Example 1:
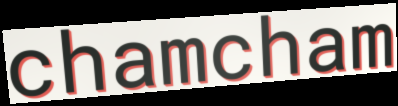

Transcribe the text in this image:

chamcham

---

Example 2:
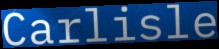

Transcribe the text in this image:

Carlisle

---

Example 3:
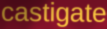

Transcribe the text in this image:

castigate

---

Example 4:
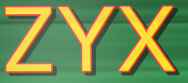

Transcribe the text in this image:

ZYX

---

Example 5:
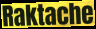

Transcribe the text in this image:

Raktache